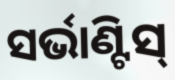
ସର୍ଭାଣ୍ଟିସ୍